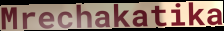
Mrechakatika